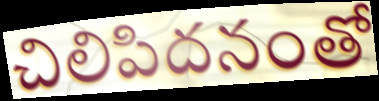
చిలిపిదనంతో